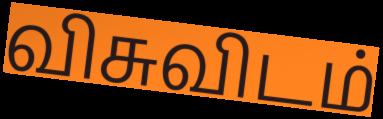
விசுவிடம்